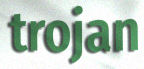
trojan